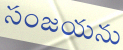
సంజయను